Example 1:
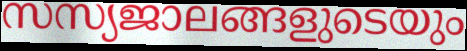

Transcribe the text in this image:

സസ്യജാലങ്ങളുടെയും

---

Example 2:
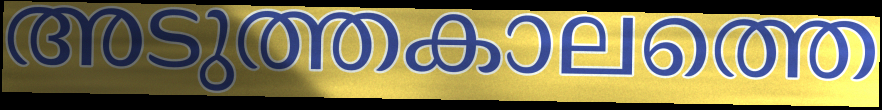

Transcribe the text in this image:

അടുത്തകാലത്തെ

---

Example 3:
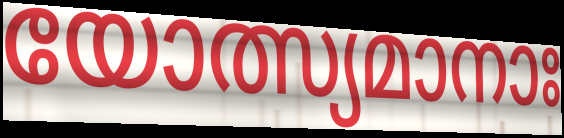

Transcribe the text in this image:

യോത്സ്യമാനാഃ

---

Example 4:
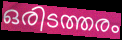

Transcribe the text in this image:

ഒരിടത്തരം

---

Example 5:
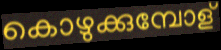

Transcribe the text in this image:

കൊഴുക്കുമ്പോള്